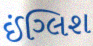
ઈંગ્લિશ